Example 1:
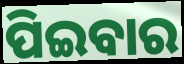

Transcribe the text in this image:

ପିଇବାର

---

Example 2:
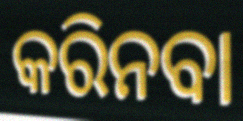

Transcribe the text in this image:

କରିନବା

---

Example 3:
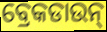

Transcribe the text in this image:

ବ୍ରେକଡାଉନ୍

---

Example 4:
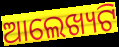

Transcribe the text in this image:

ଆଲେଖ୍ୟଟି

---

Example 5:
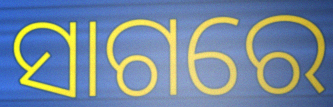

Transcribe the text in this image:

ସାଗରେ